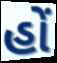
હોં